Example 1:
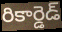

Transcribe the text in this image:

రికార్డెడ్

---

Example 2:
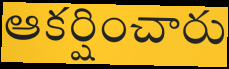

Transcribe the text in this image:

ఆకర్షించారు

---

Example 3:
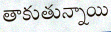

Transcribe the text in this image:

తాకుతున్నాయి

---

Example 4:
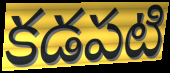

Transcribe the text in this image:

కడపటి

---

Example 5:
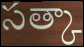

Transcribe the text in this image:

సత్కా